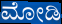
ಮೋಡಿ